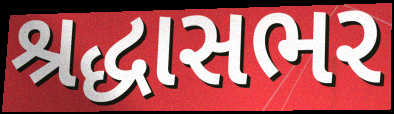
શ્રદ્ધાસભર